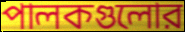
পালকগুলোর